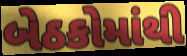
બેઠકોમાંથી